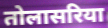
तोलासरिया